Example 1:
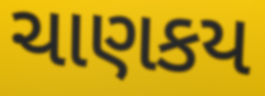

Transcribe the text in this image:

ચાણકય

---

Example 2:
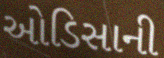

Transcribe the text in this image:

ઓડિસાની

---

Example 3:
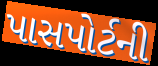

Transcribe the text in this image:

પાસપોર્ટની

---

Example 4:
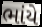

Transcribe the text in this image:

ભાંયે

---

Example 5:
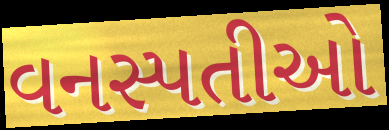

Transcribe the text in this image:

વનસ્પતીઓ